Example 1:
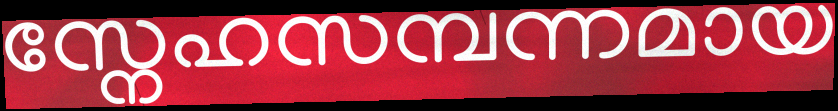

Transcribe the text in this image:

സ്നേഹസമ്പന്നമായ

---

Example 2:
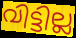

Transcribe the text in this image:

വിട്ടില്ല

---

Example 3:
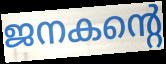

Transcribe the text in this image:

ജനകന്റെ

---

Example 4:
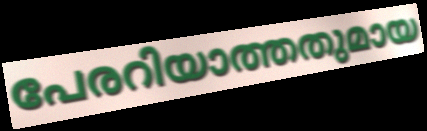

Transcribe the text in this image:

പേരറിയാത്തതുമായ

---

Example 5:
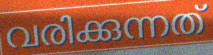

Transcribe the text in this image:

വരിക്കുന്നത്